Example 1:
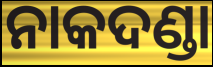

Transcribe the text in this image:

ନାକଦଣ୍ଡା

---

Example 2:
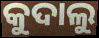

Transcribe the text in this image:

କୁଦାଲୁ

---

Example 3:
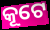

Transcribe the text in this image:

କୂଟେ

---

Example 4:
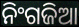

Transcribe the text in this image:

ନିଂଗଜିଆ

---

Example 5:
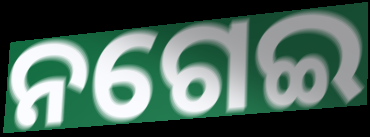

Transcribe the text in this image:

ନଗେଇ